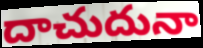
దాచుదునా